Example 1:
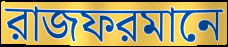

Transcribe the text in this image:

রাজফরমানে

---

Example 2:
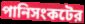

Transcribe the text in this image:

পানিসংকটের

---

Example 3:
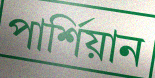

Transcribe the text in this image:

পার্শিয়ান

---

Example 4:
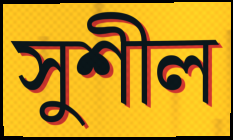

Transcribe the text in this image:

সুশীল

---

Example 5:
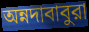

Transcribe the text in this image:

অন্নদাবাবুরা